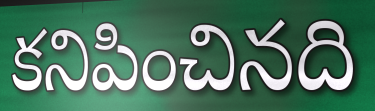
కనిపించినది